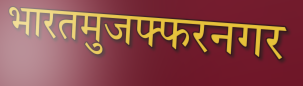
भारतमुजफ्फरनगर